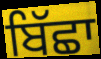
ਬਿੱਛਾ